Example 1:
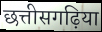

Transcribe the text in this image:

छत्तीसगढ़िया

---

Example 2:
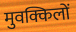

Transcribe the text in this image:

मुवक्किलों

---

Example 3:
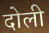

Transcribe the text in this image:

दोली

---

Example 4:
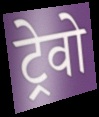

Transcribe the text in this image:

ट्रेवो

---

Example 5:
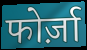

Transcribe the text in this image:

फोर्ज़ा